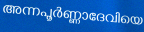
അന്നപൂർണ്ണാദേവിയെ